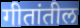
गीतांतील